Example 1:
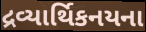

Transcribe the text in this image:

દ્રવ્યાર્થિકનયના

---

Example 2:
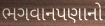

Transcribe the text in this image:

ભગવાનપણાનો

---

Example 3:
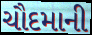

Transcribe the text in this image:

ચૌદમાની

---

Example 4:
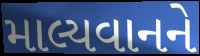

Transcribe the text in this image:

માલ્યવાનને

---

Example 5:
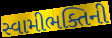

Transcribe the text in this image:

સ્વામીભક્તિની